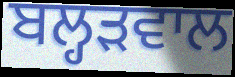
ਬਲ੍ਹੜਵਾਲ